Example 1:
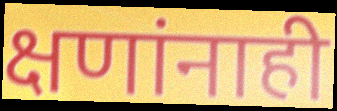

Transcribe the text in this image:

क्षणांनाही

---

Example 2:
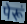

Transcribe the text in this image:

पेरूं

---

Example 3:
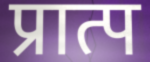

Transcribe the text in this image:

प्रात्प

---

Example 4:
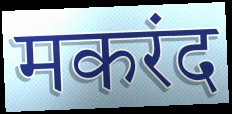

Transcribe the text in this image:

मकरंद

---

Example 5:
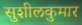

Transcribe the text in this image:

सुशीलकुमार